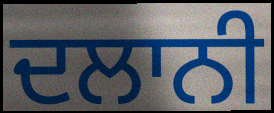
ਦਲਾਨੀ